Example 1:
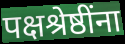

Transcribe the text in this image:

पक्षश्रेष्ठींना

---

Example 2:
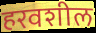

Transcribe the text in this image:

हरवशील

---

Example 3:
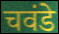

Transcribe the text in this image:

चवंडे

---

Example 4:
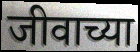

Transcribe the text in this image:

जीवाच्या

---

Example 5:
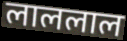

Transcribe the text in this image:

लाललाल